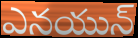
ఎనయున్